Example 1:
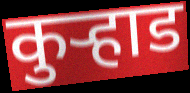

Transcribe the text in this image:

कुर्‍हाड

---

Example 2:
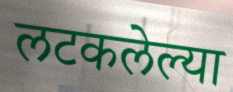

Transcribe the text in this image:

लटकलेल्या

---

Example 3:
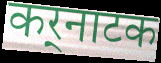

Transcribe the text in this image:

कर्नाटक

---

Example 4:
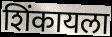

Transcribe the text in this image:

शिंकायला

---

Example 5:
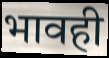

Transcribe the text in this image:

भावही